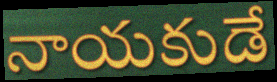
నాయకుడే